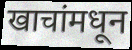
खाचांमधून